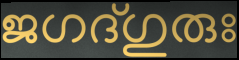
ജഗദ്ഗുരുഃ